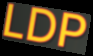
LDP